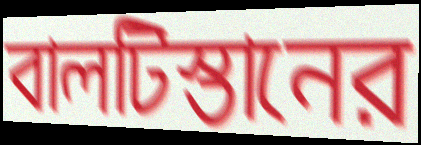
বালটিস্তানের